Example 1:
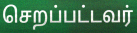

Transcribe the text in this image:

செறப்பட்டவர்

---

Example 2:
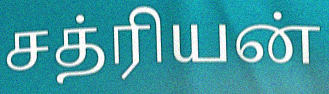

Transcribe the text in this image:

சத்ரியன்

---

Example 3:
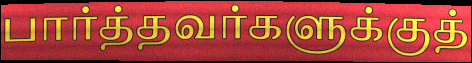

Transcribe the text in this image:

பார்த்தவர்களுக்குத்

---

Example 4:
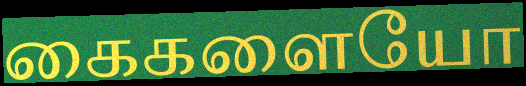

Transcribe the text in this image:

கைகளையோ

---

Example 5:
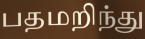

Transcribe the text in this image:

பதமறிந்து